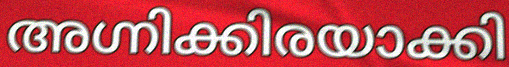
അഗ്നിക്കിരയാക്കി